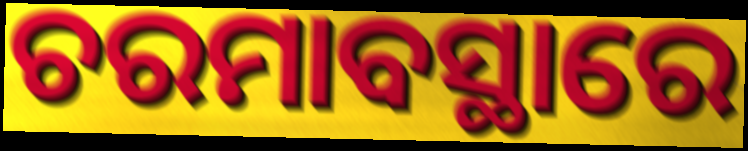
ଚରମାବସ୍ଥାରେ